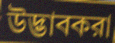
উদ্ভাবকরা